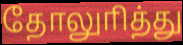
தோலுரித்து